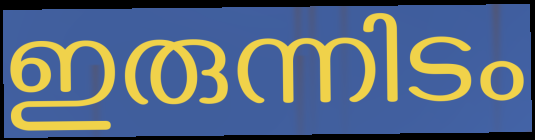
ഇരുന്നിടം